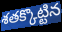
శతక్కొట్టిన